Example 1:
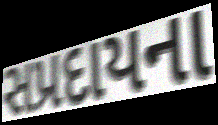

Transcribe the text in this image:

સપ્રદાયના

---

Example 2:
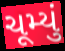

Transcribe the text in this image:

ચૂમ્યું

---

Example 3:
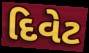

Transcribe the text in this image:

દિવેટ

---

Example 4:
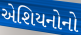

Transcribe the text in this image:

એશિયનોનો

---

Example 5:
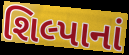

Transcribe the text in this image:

શિલ્પાનાં